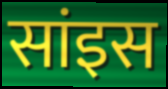
सांइस